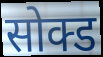
सोक्ड